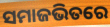
ସମାଜଭିତରେ